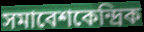
সমাবেশকেন্দ্রিক